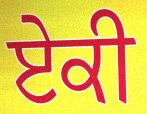
ਏਕੀ